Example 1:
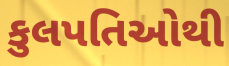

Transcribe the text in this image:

કુલપતિઓથી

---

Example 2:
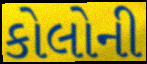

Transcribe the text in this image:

કોલોની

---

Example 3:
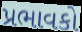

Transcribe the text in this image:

પ્રભાવકો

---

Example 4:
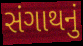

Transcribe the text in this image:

સંગાથનું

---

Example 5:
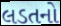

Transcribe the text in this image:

લડતનો